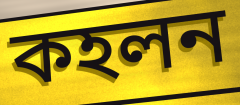
কহলন